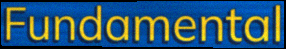
Fundamental